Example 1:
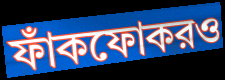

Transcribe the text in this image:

ফাঁকফোকরও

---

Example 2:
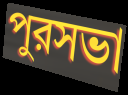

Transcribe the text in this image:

পুরসভা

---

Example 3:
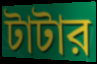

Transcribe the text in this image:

টাটার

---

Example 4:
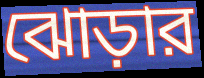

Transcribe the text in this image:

ঝোড়ার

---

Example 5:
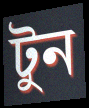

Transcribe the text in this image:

টুন